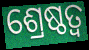
ଶ୍ରେଷ୍ଠତ୍ବ